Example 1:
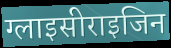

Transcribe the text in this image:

ग्लाइसीराइजिन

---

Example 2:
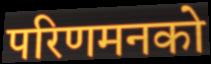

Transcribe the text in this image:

परिणमनको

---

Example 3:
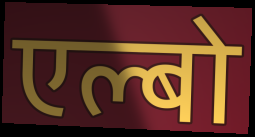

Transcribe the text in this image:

एल्बो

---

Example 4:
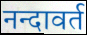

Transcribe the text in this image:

नन्दावर्त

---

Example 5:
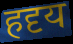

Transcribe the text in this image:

हदृय